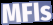
MFIs